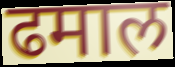
ढमाल